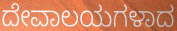
ದೇವಾಲಯಗಳಾದ